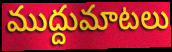
ముద్దుమాటలు